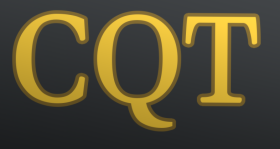
CQT